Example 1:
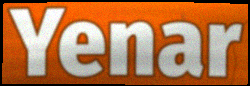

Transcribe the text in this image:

Yenar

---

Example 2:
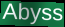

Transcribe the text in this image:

Abyss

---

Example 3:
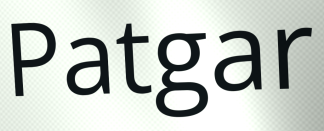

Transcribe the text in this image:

Patgar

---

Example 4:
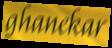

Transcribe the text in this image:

ghanekar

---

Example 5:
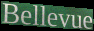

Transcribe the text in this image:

Bellevue